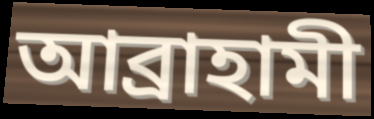
আব্ৰাহামী